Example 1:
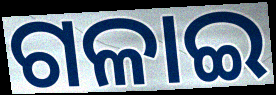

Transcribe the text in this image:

ଗଳାଇ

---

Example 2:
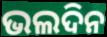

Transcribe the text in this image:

ଭଲଦିନ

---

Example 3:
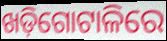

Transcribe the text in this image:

ଖଡ଼ିଗୋଟାଳିରେ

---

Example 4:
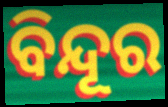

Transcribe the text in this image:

ବିନ୍ଦୂର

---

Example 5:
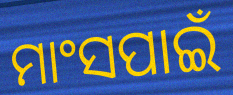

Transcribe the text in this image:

ମାଂସପାଇଁ